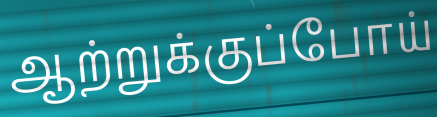
ஆற்றுக்குப்போய்